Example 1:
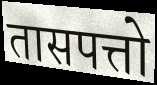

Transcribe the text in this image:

तासपत्तो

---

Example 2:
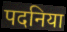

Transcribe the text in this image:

पदनिया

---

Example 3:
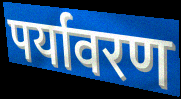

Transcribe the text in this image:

पर्यावरण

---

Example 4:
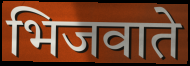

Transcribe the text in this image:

भिजवाते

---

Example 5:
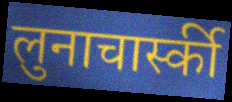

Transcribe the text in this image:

लुनाचार्स्की